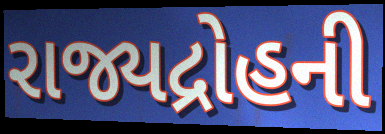
રાજ્યદ્રોહની